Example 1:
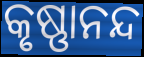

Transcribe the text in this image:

କୃଷ୍ଣାନନ୍ଦ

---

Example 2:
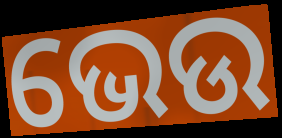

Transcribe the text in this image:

ଭେଉ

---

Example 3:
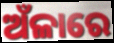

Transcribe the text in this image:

ଅଁଳାରେ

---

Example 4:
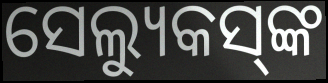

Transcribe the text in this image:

ସେଲ୍ୟୁକସ୍‌ଙ୍କ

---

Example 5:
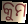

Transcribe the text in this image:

କୁମ